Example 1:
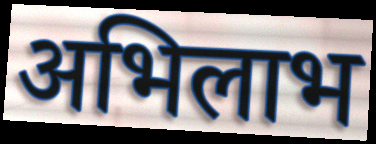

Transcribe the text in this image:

अभिलाभ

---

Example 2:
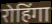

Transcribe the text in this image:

रोहिंगा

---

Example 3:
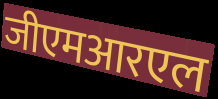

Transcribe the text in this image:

जीएमआरएल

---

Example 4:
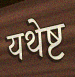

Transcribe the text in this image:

यथेष्ट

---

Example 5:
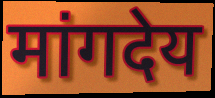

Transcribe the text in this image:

मांगदेय